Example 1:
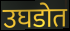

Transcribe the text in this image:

उघडोत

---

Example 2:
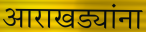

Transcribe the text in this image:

आराखड्यांना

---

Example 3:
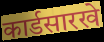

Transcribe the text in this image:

कार्डसारखे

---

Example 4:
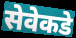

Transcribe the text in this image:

सेवेकडे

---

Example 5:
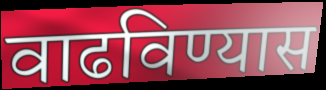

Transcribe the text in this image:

वाढविण्यास